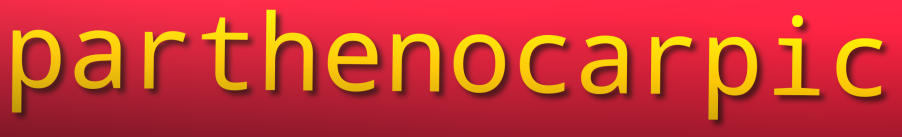
parthenocarpic